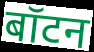
बॉटन